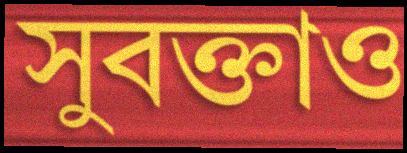
সুবক্তাও